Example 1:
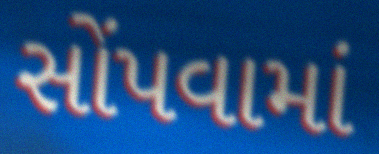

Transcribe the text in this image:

સોંપવામાં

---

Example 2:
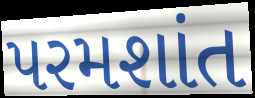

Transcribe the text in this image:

પરમશાંત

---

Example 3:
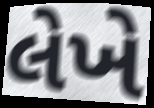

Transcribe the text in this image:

લેખે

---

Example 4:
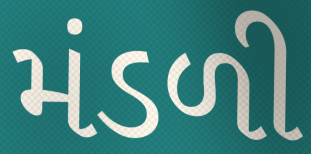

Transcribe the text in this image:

મંડળી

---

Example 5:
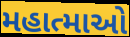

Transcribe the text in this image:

મહાત્માઓ